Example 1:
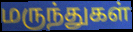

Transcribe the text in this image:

மருந்துகள்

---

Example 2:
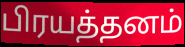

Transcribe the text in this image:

பிரயத்தனம்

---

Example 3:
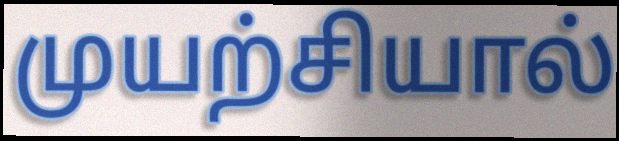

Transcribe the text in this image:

முயற்சியால்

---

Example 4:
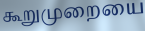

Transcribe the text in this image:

கூறுமுறையை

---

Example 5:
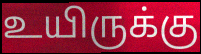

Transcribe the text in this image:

உயிருக்கு